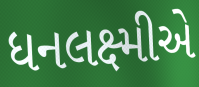
ધનલક્ષ્મીએ